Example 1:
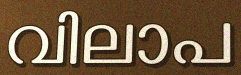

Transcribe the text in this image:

വിലാപ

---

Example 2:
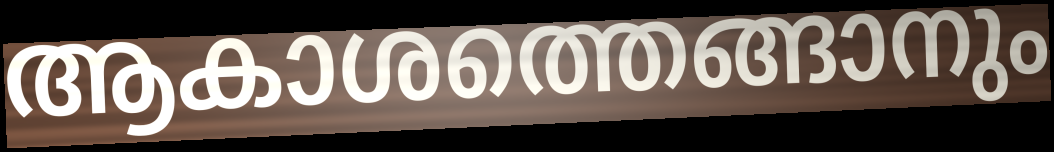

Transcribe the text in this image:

ആകാശത്തെങ്ങാനും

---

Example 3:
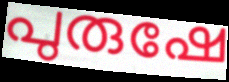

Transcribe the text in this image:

പുരുഷേ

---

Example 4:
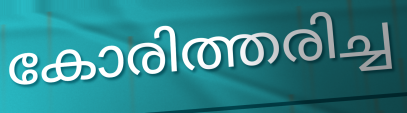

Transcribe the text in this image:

കോരിത്തരിച്ച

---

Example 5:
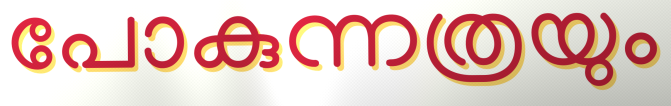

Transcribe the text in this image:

പോകുന്നത്രയും